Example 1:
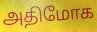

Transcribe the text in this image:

அதிமோக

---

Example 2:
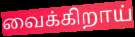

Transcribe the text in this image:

வைக்கிறாய்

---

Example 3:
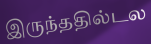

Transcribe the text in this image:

இருந்ததில்டல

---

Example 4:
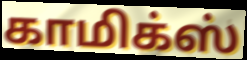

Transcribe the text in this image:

காமிக்ஸ்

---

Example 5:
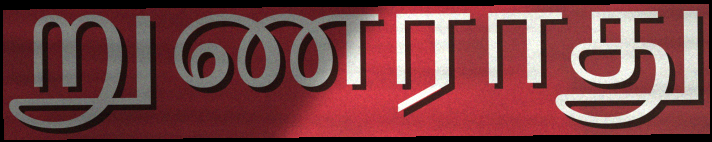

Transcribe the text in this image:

றுணராது